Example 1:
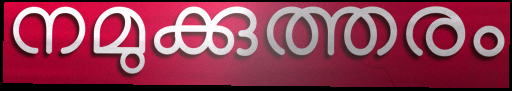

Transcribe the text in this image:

നമുക്കുത്തരം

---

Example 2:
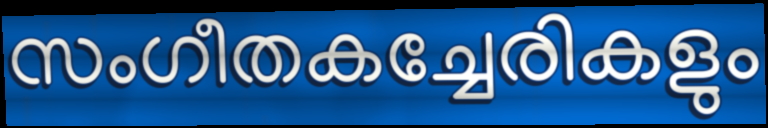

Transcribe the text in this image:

സംഗീതകച്ചേരികളും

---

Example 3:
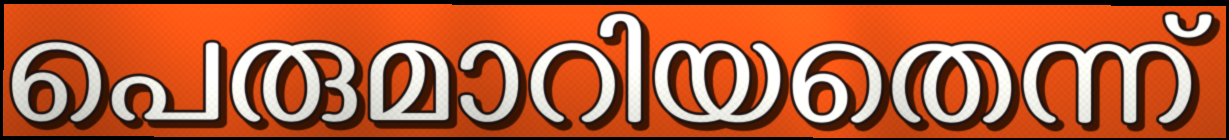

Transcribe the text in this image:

പെരുമാറിയതെന്ന്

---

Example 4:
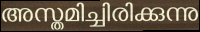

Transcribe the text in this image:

അസ്തമിച്ചിരിക്കുന്നു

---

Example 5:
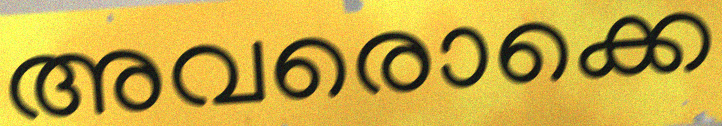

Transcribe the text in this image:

അവരൊക്കെ